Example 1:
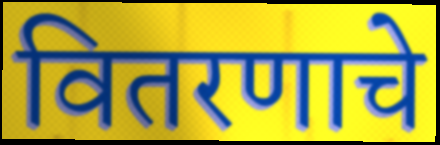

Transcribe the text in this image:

वितरणाचे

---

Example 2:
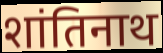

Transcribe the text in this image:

शांतिनाथ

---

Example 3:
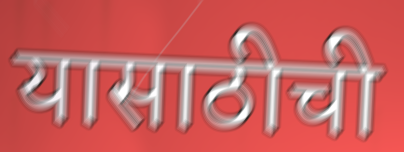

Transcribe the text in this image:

यासाठीची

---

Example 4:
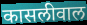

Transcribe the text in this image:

कासलीवाल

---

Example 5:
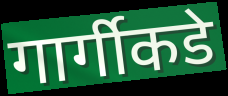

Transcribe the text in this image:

गार्गीकडे